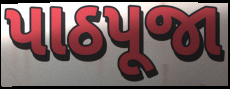
પાઠપૂજા